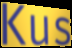
Kus